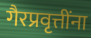
गैरप्रवृत्तींना